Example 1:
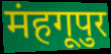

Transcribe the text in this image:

मंहगूपुर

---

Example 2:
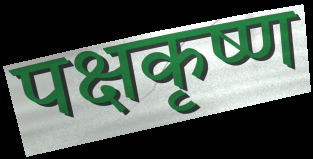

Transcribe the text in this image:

पक्षकृष्ण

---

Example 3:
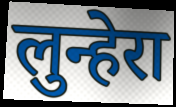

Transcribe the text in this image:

लुन्हेरा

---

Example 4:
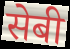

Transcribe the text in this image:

सेबी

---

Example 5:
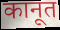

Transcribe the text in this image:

कानूत